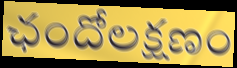
ఛందోలక్షణం